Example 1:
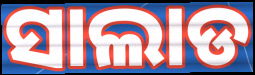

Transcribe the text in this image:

ସାଲାଡ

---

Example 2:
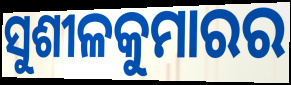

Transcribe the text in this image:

ସୁଶୀଳକୁମାରର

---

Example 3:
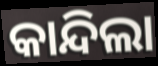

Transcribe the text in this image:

କାନ୍ଦିଲା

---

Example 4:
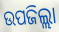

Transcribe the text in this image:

ଉପଜିଲ୍ଲା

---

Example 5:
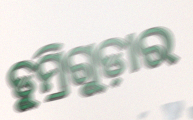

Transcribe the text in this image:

ଡୁମ୍ରିଗୁଡ଼ାର